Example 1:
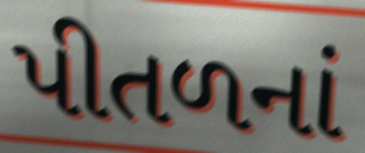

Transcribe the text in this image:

પીતળનાં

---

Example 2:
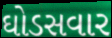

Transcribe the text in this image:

ઘોડસવાર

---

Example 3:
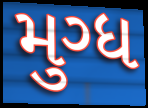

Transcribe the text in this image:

મુગ્ધ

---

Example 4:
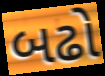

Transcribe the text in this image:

બઢો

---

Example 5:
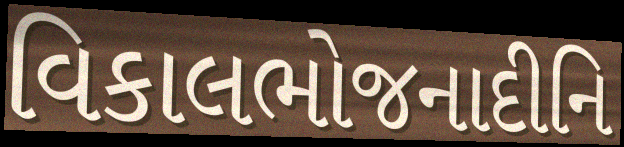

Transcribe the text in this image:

વિકાલભોજનાદીનિ